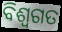
ବିଶ୍ୱଗତ